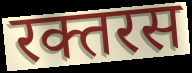
रक्तरस